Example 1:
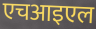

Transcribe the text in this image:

एचआइएल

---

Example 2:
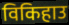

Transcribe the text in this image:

विकिहाउ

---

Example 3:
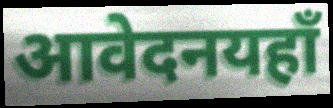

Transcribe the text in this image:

आवेदनयहाँ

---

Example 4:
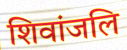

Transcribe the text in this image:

शिवांजलि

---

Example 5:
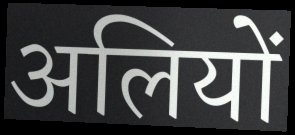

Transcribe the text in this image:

अलियों